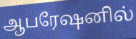
ஆபரேஷனில்